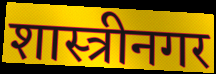
शास्त्रीनगर